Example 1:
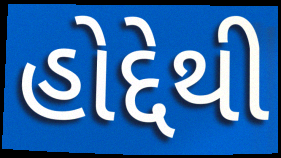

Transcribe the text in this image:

હોદ્દેથી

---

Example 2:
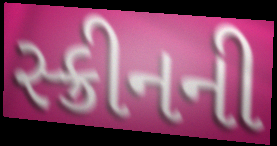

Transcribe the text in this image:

સ્ક્રીનની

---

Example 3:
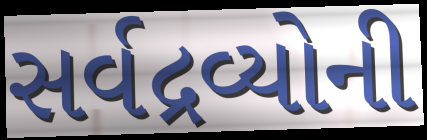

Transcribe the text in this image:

સર્વદ્રવ્યોની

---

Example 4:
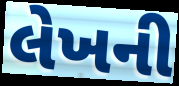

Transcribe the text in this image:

લેખની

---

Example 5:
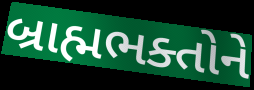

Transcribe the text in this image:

બ્રાહ્મભક્તોને